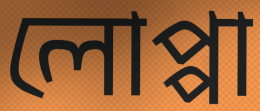
লোপ্পা